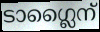
ടാഗ്ലൈന്